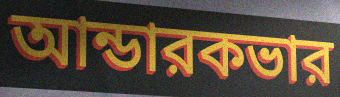
আন্ডারকভার